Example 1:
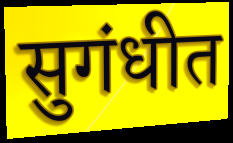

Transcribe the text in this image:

सुगंधीत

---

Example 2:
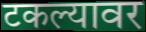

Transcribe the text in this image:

टकल्यावर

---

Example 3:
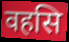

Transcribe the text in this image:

वहसि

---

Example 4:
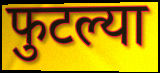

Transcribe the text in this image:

फुटल्या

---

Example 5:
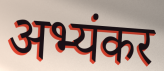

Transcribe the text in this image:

अभ्यंकर